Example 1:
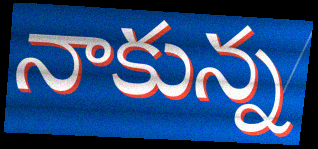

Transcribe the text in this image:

నాకున్న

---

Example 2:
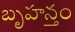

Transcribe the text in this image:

బృహన్తం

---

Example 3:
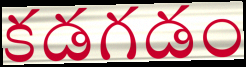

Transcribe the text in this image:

కడగడం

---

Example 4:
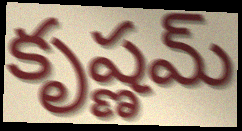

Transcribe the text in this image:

కృష్ణమ్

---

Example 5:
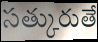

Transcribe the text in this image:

సత్కురుతే